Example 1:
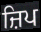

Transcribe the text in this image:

ਜ਼ਿਪ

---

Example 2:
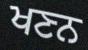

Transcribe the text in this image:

ਖਣਨ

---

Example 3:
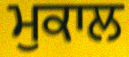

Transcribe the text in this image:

ਮੁਕਾਲ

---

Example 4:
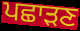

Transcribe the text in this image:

ਪਛਾੜਣ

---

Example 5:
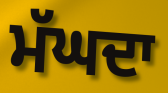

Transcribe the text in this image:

ਮੱਘਦਾ